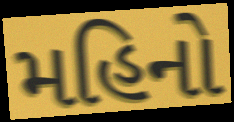
મહિનો